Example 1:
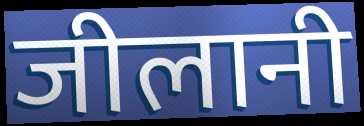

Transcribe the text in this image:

जीलानी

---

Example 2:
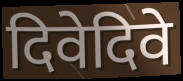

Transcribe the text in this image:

दिवेदिवे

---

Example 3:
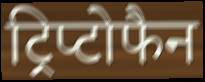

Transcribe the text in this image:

ट्रिप्टोफैन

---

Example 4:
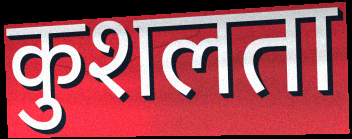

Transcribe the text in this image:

कुशलता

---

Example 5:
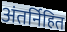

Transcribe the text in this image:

अंतर्निहित